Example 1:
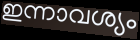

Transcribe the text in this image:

ഇന്നാവശ്യം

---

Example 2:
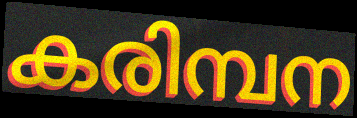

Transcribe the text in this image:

കരിമ്പന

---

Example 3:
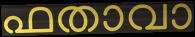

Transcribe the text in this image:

ഫതാവാ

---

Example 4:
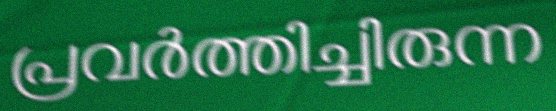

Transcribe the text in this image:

പ്രവർത്തിച്ചിരുന്ന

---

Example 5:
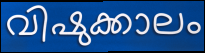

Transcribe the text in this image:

വിഷുക്കാലം